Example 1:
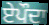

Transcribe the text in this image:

ਏਪੌਦਾ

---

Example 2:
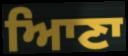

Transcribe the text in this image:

ਆਿਣਾ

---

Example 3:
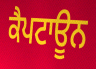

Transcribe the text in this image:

ਕੈਪਟਾਊਨ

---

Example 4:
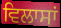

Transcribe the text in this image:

ਵਿਲਾਸਾਂ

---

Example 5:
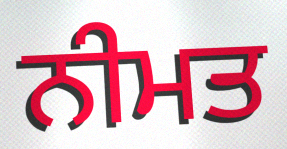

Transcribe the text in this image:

ਨੀਮਤ